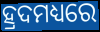
ହ୍ରଦମଧ୍ୟରେ